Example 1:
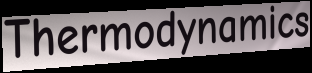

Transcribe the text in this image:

Thermodynamics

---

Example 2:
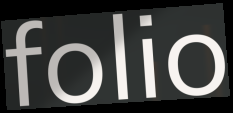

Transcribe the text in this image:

folio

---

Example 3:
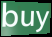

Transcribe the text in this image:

buy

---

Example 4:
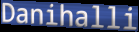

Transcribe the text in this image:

Danihalli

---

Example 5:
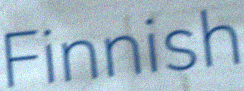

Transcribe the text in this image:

Finnish